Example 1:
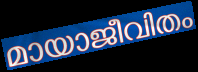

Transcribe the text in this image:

മായാജീവിതം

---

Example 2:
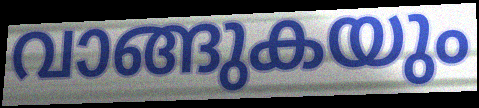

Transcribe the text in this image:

വാങ്ങുകയും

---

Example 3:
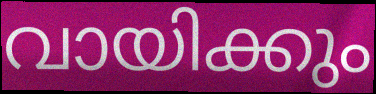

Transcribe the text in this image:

വായിക്കും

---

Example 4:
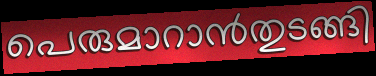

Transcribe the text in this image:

പെരുമാറാൻതുടങ്ങി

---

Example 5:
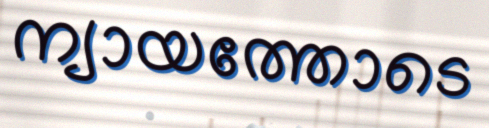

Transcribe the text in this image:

ന്യായത്തോടെ